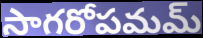
సాగరోపమమ్